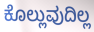
ಕೊಲ್ಲುವುದಿಲ್ಲ